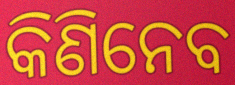
କିଣିନେବ